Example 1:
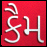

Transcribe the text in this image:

કૈમ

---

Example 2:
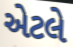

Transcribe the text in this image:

એટલે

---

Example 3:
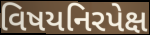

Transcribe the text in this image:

વિષયનિરપેક્ષ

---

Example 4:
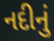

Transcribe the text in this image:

નદીનું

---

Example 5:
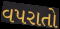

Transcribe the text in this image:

વપરાતો